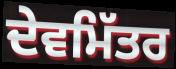
ਦੇਵਮਿੱਤਰ